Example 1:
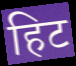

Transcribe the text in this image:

हिट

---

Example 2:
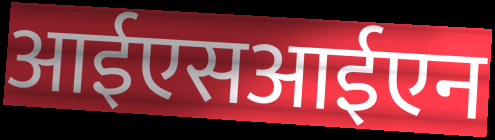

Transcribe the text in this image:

आईएसआईएन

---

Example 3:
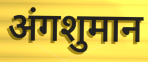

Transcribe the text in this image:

अंगशुमान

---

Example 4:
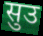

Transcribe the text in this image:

सुउ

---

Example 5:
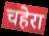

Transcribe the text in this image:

चहेरा